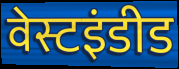
वेस्टइंडीड